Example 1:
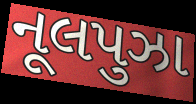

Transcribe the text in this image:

નૂલપુઝા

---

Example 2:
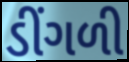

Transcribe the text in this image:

ડીંગળી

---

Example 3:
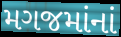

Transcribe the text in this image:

મગજમાંનાં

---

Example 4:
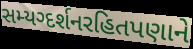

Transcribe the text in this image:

સમ્યગ્દર્શનરહિતપણાને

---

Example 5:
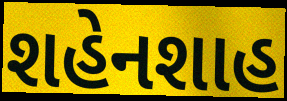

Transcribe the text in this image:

શહેનશાહ